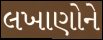
લખાણોને